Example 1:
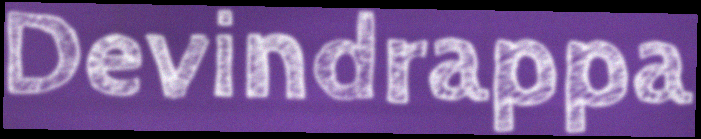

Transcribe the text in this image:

Devindrappa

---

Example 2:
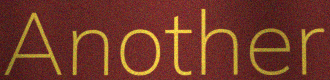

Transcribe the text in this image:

Another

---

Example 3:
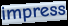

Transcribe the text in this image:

impress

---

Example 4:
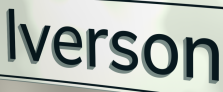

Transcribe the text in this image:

Iverson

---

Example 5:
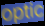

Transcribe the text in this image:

optic